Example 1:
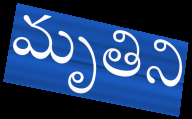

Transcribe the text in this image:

మృతిని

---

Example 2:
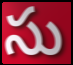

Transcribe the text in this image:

సు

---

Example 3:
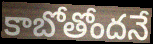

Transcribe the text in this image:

కాబోతోందనే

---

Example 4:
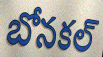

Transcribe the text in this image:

బోనకల్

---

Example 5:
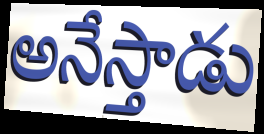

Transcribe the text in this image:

అనేస్తాడు